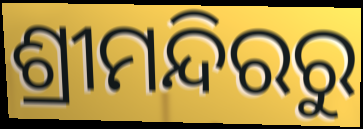
ଶ୍ରୀମନ୍ଦିରରୁ